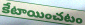
కేటాయించటం